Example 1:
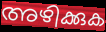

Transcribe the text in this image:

അഴിക്കുക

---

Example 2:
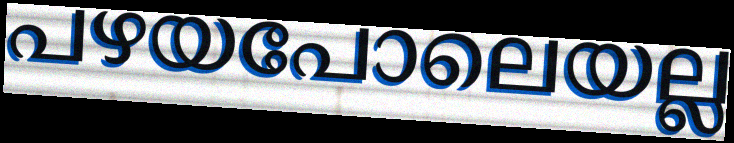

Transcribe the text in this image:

പഴയപോലെയല്ല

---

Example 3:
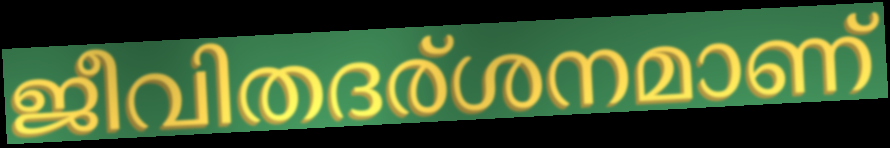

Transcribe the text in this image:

ജീവിതദര്ശനമാണ്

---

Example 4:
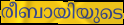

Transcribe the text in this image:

രീബായിയുടെ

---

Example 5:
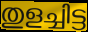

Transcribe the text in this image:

തുളച്ചിട്ട